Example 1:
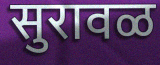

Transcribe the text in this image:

सुरावळ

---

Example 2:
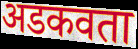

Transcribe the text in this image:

अडकवता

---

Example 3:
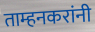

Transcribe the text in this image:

ताम्हनकरांनी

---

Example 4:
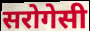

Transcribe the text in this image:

सरोगेसी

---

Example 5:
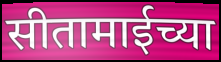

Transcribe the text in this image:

सीतामाईच्या